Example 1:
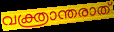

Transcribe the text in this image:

വക്ത്രാന്തരാത്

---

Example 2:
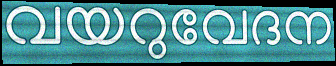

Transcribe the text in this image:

വയറുവേദന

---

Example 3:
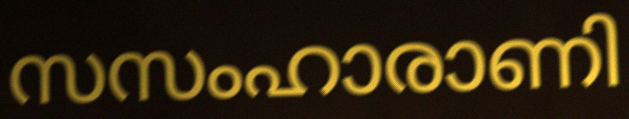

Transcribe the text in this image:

സസംഹാരാണി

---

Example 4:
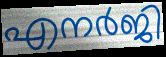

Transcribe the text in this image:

എനർജി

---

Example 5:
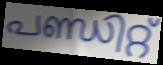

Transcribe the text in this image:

പണ്ഡിറ്റ്